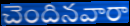
చెందినవారా